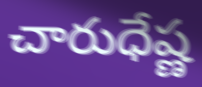
చారుధేష్ణ